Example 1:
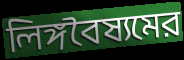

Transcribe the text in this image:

লিঙ্গবৈষ্যমের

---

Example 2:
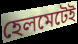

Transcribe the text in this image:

হেলমেটেই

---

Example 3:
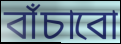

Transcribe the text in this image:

বাঁচাবো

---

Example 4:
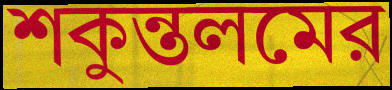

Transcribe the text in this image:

শকুন্তলমের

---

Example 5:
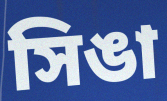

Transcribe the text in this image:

সিঙা